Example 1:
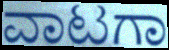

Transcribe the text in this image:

ವಾಟಗಾ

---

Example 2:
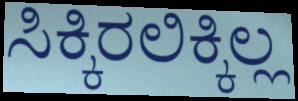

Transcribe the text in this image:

ಸಿಕ್ಕಿರಲಿಕ್ಕಿಲ್ಲ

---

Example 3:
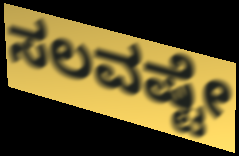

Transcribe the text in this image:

ಸಲವಷ್ಟೇ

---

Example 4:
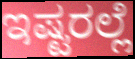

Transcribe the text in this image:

ಇಷ್ಟರಲ್ಲೆ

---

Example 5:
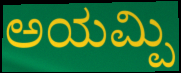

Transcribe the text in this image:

ಅಯಮ್ಪಿ